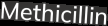
Methicillin